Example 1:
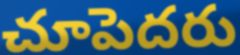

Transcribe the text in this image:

చూపెదరు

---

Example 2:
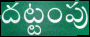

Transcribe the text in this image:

దట్టంపు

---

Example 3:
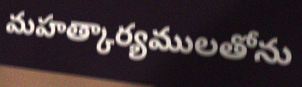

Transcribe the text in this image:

మహత్కార్యములతోను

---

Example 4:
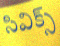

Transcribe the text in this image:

సివిక్స్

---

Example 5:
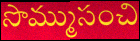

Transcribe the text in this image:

సొమ్ముసంచి